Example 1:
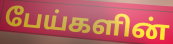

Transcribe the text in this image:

பேய்களின்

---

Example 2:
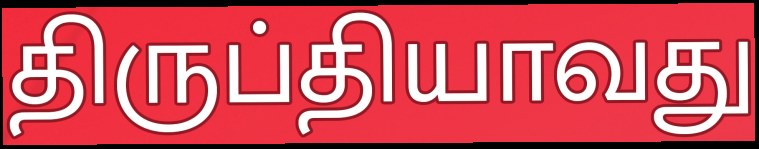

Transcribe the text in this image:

திருப்தியாவது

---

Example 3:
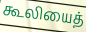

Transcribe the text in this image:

கூலியைத்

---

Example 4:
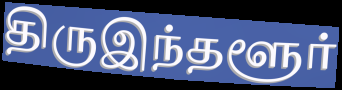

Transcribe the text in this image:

திருஇந்தளூர்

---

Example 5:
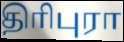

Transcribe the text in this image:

திரிபுரா